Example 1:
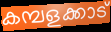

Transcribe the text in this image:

കമ്പളക്കാട്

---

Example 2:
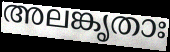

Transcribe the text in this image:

അലങ്കൃതാഃ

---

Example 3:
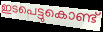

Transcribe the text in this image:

ഇടപെട്ടുകൊണ്ട്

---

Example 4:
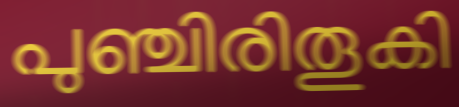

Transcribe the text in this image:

പുഞ്ചിരിതൂകി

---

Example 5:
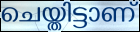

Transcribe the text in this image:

ചെയ്തിട്ടാണ്